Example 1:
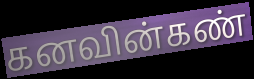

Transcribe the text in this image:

கனவின்கண்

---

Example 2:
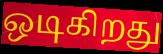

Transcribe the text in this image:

ஒடிகிறது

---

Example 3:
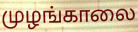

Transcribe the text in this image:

முழங்காலை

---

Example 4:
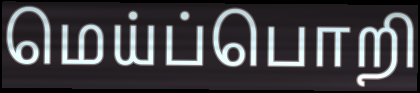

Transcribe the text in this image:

மெய்ப்பொறி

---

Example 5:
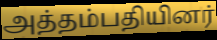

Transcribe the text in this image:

அத்தம்பதியினர்